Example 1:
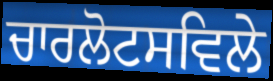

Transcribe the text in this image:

ਚਾਰਲੋਟਸਵਿਲੇ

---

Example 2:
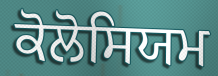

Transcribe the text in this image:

ਕੋਲੋਸਿਯਮ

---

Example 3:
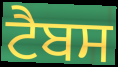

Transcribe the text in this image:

ਟੈਬਸ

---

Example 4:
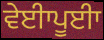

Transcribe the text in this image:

ਵੇਈਾਪੂਈਾ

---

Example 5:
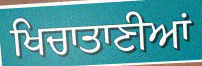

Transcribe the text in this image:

ਖਿਚਾਤਾਣੀਆਂ